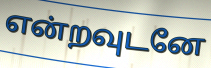
என்றவுடனே